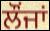
ਲੌਂਜਾਂ